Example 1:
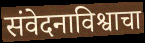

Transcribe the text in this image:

संवेदनाविश्वाचा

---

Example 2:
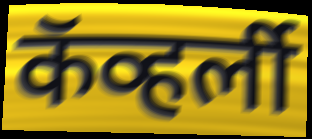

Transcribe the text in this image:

कॅव्हर्ली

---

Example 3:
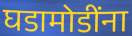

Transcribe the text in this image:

घडामोडींना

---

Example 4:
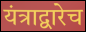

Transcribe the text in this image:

यंत्राद्वारेच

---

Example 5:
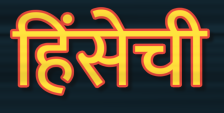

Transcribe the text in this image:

हिंसेची